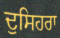
ਦੁਸਿਹਰਾ